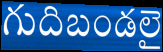
గుదిబండలై